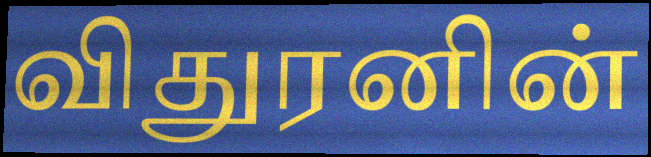
விதுரனின்